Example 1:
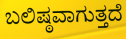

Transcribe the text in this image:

ಬಲಿಷ್ಠವಾಗುತ್ತದೆ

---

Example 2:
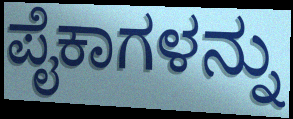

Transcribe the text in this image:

ಪೈಕಾಗಳನ್ನು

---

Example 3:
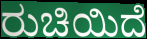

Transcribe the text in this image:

ರುಚಿಯಿದೆ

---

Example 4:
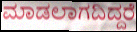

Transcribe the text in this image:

ಮಾಡಲಾಗದಿದ್ದರೆ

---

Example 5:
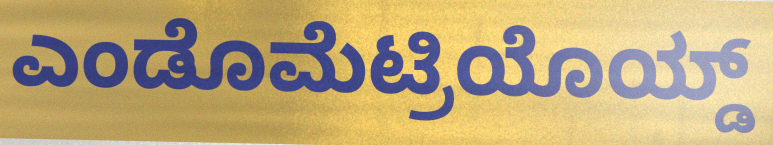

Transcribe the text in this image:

ಎಂಡೊಮೆಟ್ರಿಯೊಯ್ಡ್